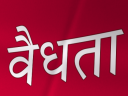
वैधता